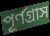
পূর্ণগ্রাস